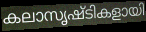
കലാസൃഷ്ടികളായി